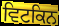
ਵਿਟਕਿਨ